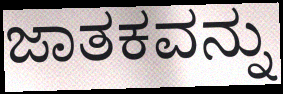
ಜಾತಕವನ್ನು